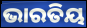
ଭାରତିୟ